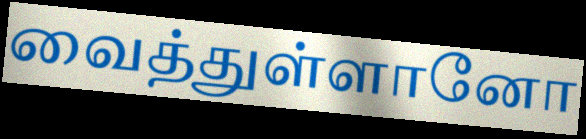
வைத்துள்ளானோ